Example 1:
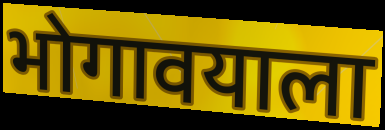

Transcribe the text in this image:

भोगावयाला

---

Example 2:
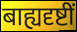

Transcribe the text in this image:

बाह्यदृष्टीं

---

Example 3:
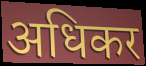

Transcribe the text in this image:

अधिकर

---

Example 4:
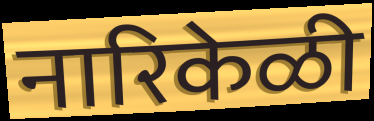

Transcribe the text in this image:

नारिकेळी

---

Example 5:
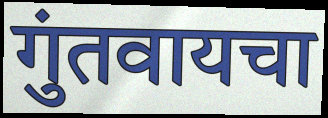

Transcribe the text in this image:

गुंतवायचा